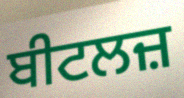
ਬੀਟਲਜ਼